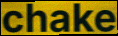
chake